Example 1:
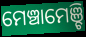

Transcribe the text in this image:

ମେଞ୍ଚାମେଞ୍ଚି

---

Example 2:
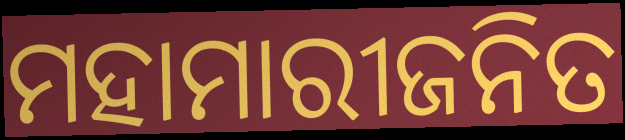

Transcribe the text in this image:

ମହାମାରୀଜନିତ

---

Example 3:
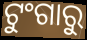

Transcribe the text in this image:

ଟୁଂଗାରୁ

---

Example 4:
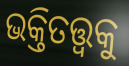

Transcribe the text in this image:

ଭକ୍ତିତତ୍ତ୍ୱକୁ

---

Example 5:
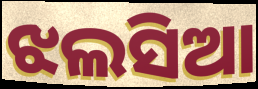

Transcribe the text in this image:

ଝଲସିଆ